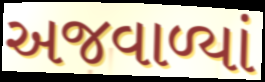
અજવાળ્યાં